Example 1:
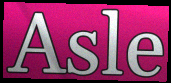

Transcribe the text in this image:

Asle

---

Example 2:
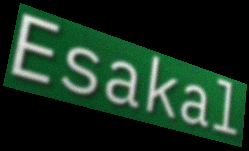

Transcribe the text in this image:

Esakal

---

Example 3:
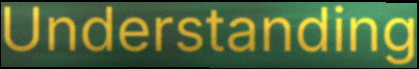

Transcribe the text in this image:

Understanding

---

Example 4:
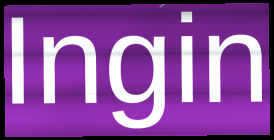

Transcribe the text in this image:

Ingin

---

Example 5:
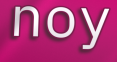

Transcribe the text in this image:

noy